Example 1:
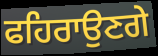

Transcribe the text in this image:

ਫਹਿਰਾਉਣਗੇ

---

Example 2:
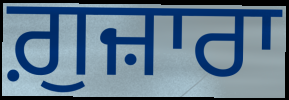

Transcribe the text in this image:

ਗ਼ੁਜ਼ਾਰਾ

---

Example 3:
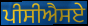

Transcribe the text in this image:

ਪੀਸੀਐਸਏ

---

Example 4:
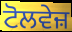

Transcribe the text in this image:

ਟੋਲਵੇਜ਼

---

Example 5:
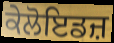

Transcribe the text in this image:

ਕੇਲੋਇਡਜ਼